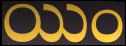
యిం